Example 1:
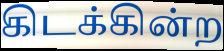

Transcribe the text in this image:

கிடக்கின்ற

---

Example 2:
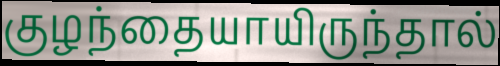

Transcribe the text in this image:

குழந்தையாயிருந்தால்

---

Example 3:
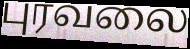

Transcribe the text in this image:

புரவலை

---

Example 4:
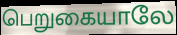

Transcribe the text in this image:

பெறுகையாலே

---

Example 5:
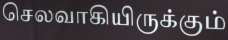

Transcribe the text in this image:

செலவாகியிருக்கும்